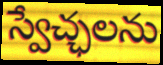
స్వేచ్ఛలను